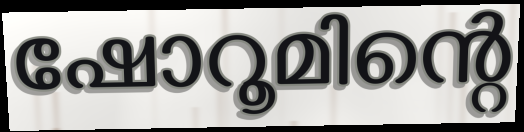
ഷോറൂമിന്റെ